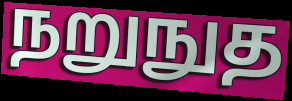
நறுநுத